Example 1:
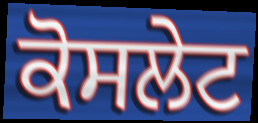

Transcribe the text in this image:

ਕੋਸਲੇਟ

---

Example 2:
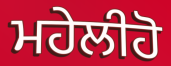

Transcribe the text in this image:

ਮਹੇਲੀਹੋ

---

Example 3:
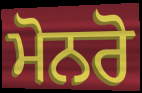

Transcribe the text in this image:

ਮੋਨਰੋ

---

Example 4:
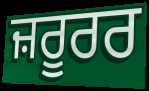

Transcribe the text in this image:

ਜ਼ਰੂਰਰ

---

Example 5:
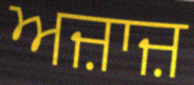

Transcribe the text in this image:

ਅਜ਼ਾਜ਼